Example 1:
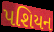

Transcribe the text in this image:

પશિયન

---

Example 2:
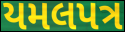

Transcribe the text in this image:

યમલપત્ર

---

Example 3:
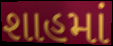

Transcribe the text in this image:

શાહમાં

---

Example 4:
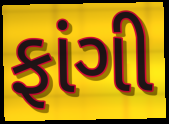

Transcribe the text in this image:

ફાંગી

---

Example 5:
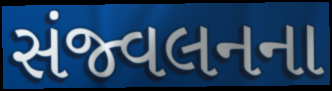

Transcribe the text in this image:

સંજ્વલનના